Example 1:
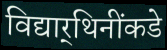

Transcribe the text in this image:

विद्यार्थिनींकडे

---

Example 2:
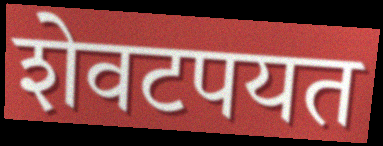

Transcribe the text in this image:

शेवटपयत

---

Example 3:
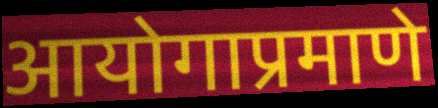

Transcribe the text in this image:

आयोगाप्रमाणे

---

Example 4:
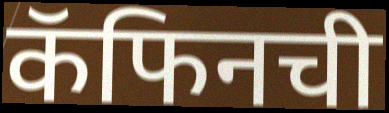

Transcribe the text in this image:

कॅफिनची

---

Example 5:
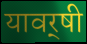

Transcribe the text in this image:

यावर्षी